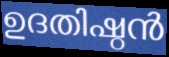
ഉദതിഷ്ഠൻ